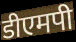
डीएमपी